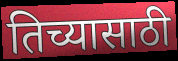
तिच्यासाठी